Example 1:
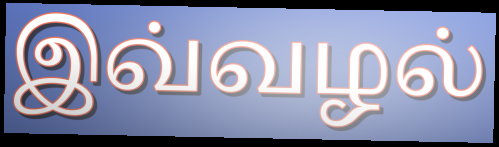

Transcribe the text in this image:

இவ்வழல்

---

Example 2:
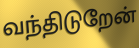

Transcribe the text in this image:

வந்திடுறேன்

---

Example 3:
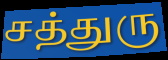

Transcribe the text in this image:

சத்துரு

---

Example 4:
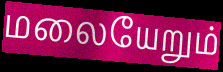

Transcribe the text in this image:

மலையேறும்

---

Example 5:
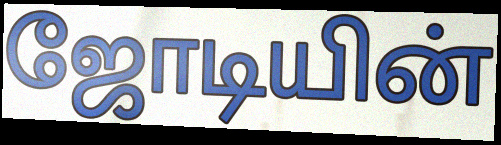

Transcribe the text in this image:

ஜோடியின்